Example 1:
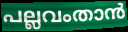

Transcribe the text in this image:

പല്ലവംതാൻ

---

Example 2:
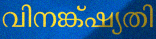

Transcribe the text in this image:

വിനങ്ക്ഷ്യതി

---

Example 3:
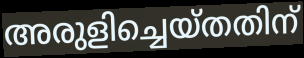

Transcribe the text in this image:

അരുളിച്ചെയ്തതിന്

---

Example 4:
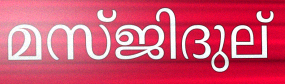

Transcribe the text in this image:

മസ്ജിദുല്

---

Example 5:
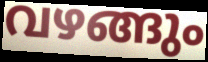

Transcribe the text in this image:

വഴങ്ങും